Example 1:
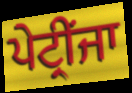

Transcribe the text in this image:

ਪੇਟ੍ਰੀਂਜਾ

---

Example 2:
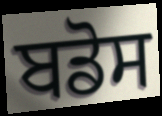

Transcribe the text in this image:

ਬਡੋਸ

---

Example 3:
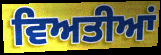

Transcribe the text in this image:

ਵਿਅਤੀਆਂ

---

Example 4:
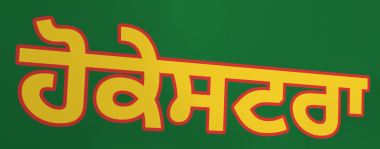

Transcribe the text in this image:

ਹੋਕੇਸਟਰਾ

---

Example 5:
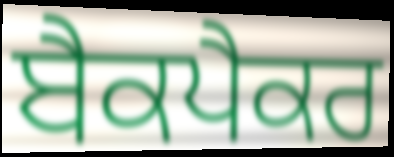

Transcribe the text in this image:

ਬੈਕਪੈਕਰ